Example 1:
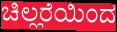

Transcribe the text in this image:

ಚಿಲ್ಲರೆಯಿಂದ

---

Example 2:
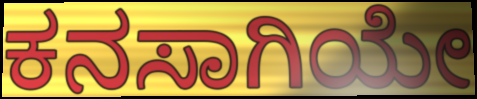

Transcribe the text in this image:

ಕನಸಾಗಿಯೇ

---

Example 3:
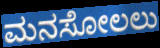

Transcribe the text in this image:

ಮನಸೋಲಲು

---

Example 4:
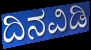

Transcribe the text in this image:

ದಿನವಿಡಿ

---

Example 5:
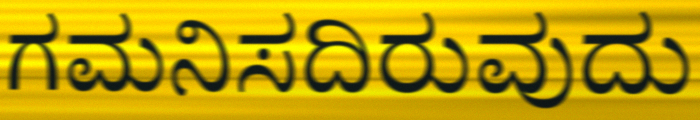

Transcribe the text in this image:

ಗಮನಿಸದಿರುವುದು